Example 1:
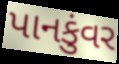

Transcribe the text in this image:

પાનકુંવર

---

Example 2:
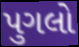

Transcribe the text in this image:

પુગલો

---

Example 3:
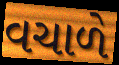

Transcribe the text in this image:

વચાળે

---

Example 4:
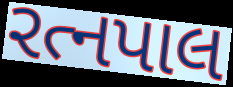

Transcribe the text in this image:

રત્નપાલ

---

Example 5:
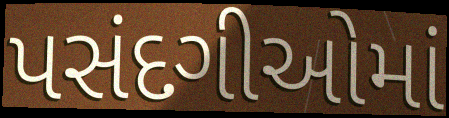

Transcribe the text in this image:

પસંદગીઓમાં